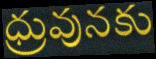
ధ్రువునకు